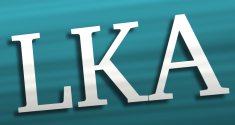
LKA